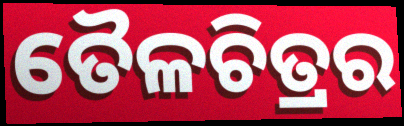
ତୈଳଚିତ୍ରର